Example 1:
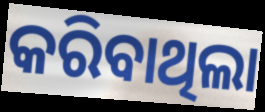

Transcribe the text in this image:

କରିବାଥିଲା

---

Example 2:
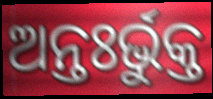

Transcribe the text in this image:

ଅନ୍ତଃର୍ଭୁକ୍ତ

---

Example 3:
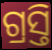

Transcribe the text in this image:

ଗ୍ରସ୍ତି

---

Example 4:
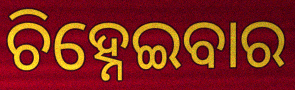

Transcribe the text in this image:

ଚିହ୍ନେଇବାର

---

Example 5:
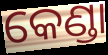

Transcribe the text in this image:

କେଣ୍ଡା